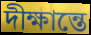
দীক্ষান্তে